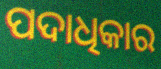
ପଦାଧିକାର